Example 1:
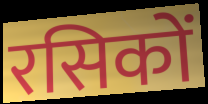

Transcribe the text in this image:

रसिकों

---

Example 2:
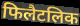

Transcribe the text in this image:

फिलैटलिक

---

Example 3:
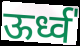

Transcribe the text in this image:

ऊर्ध्व॑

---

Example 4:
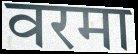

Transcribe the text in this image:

वरमा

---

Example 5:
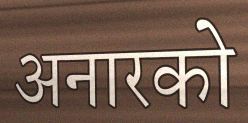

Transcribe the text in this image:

अनारको